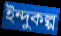
ইন্দুকল্প